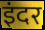
इंदर